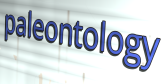
paleontology